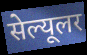
सेल्यूलर